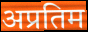
अप्रतिम